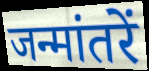
जन्मांतरें